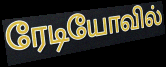
ரேடியோவில்